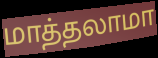
மாத்தலாமா